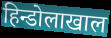
हिन्डोलाखाल